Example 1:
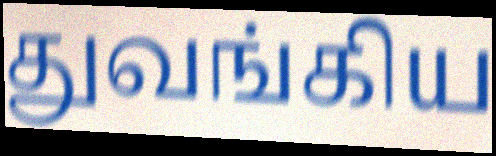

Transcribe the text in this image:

துவங்கிய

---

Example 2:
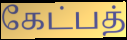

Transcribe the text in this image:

கேட்பத்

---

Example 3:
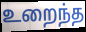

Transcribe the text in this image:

உறைந்த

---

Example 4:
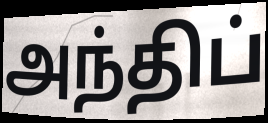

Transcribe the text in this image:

அந்திப்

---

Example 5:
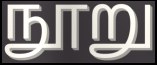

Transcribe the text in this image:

நூறு